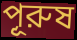
পূরুষ